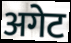
अगेट